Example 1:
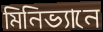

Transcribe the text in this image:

মিনিভ্যানে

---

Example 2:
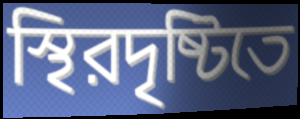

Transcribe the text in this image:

স্থিরদৃষ্টিতে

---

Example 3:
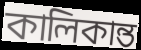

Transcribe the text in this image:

কালিকান্ত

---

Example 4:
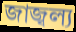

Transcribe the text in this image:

জাজ্বল্য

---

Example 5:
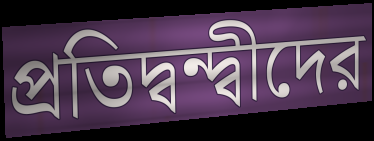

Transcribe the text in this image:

প্রতিদ্বন্দ্বীদের